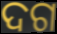
ଦଗ